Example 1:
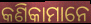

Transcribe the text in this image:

କଣିକାମାନେ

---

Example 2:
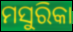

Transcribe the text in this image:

ମସୁରିକା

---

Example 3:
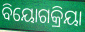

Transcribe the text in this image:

ବିୟୋଗକ୍ରିୟା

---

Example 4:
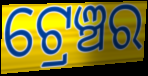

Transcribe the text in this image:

ଟ୍ରେଞ୍ଚର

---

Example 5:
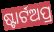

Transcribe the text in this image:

ଷ୍ଟାର୍ଟଅପ୍ର